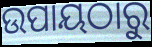
ଉପାୟଠାରୁ